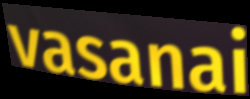
vasanai